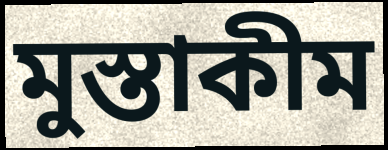
মুস্তাকীম